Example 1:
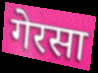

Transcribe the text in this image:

गेरसा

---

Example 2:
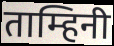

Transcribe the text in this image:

ताम्हिनी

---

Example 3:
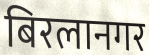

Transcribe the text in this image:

बिरलानगर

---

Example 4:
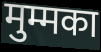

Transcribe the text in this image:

मुम्मका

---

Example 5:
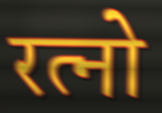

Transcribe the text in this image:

रत्नो